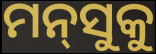
ମନ୍‌ସୁକୁ